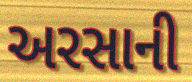
અરસાની